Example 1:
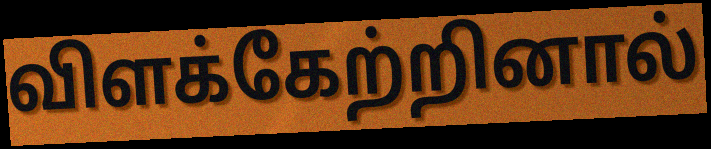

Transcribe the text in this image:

விளக்கேற்றினால்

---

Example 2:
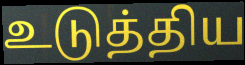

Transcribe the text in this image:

உடுத்திய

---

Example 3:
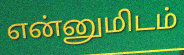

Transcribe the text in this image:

என்னுமிடம்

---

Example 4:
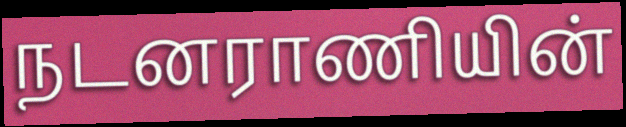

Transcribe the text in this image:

நடனராணியின்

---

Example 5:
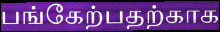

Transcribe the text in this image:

பங்கேற்பதற்காக